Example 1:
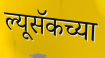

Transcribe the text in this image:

ल्यूसॅकच्या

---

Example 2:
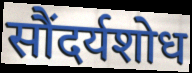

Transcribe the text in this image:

सौंदर्यशोध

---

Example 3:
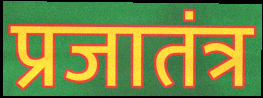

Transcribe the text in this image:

प्रजातंत्र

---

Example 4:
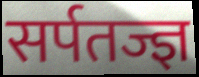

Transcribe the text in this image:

सर्पतज्ज्ञ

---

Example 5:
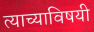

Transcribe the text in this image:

त्याच्याविषयी